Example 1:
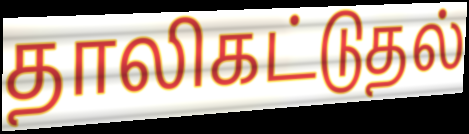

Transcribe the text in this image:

தாலிகட்டுதல்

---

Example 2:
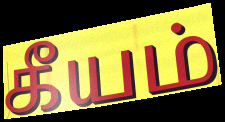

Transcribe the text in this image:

கீயம்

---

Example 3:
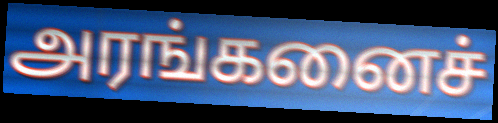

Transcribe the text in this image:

அரங்கனைச்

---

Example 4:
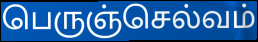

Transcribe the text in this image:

பெருஞ்செல்வம்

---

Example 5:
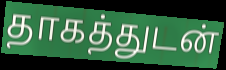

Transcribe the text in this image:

தாகத்துடன்